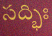
సద్భిః